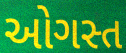
ઓગસ્ત